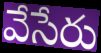
వేసేరు